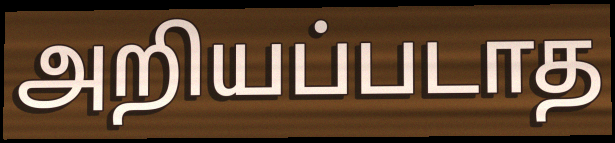
அறியப்படாத